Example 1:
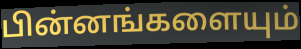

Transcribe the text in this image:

பின்னங்களையும்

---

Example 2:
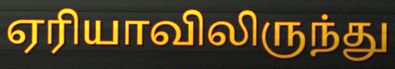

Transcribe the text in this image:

ஏரியாவிலிருந்து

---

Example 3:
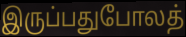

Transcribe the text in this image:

இருப்பதுபோலத்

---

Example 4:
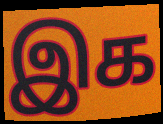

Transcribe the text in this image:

இக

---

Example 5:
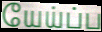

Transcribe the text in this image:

யேய்ப்ப